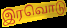
இரவொடு